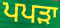
ਪਪੜਾ